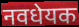
नवधेयक